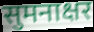
सुमनाक्षर